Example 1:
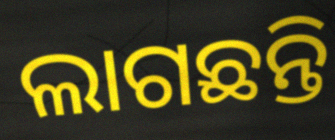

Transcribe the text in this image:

ଲାଗଛନ୍ତି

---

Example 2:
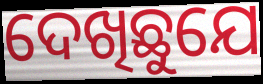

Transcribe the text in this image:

ଦେଖିଛୁଯେ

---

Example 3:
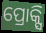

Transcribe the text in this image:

ପ୍ରୋକ୍ସି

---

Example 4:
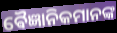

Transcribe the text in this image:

ଵୈଜ୍ଞାନିକମାନଙ୍କ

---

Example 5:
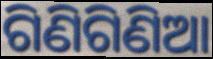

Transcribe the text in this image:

ଗିଣିଗିଣିଆ